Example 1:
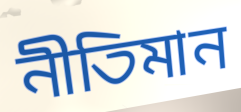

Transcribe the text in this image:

নীতিমান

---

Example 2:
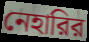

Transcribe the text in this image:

নেহারির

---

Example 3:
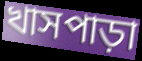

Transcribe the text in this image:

খাসপাড়া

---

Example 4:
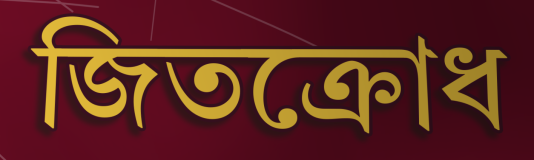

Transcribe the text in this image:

জিতক্রোধ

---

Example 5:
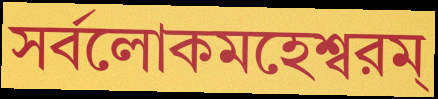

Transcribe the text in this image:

সর্বলোকমহেশ্বরম্